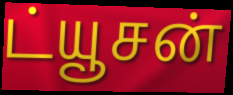
ட்யூசன்